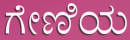
ಗೇಣಿಯ